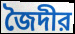
জৈদীর